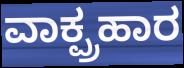
ವಾಕ್ಪ್ರಹಾರ